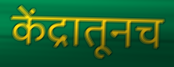
केंद्रातूनच